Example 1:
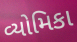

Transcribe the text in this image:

વ્યોમિકા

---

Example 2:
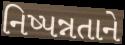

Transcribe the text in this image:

નિષ્પન્નતાને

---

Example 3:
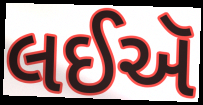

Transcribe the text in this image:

લઈઍ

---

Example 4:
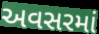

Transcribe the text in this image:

અવસરમાં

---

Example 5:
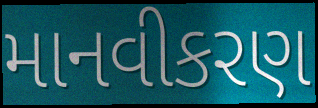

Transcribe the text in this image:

માનવીકરણ